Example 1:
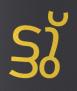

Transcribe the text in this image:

ട്ടു്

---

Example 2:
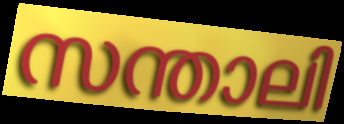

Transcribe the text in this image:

സന്താലി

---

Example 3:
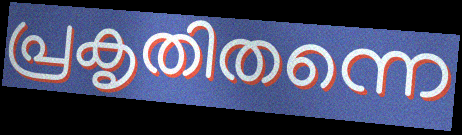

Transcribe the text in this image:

പ്രകൃതിതന്നെ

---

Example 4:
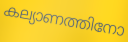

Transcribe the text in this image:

കല്യാണത്തിനോ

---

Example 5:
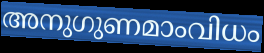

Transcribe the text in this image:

അനുഗുണമാംവിധം